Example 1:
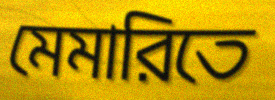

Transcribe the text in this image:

মেমারিতে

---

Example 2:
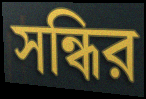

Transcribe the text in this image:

সন্ধির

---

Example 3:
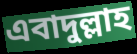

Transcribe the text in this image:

এবাদুল্লাহ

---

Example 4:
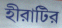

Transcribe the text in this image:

হীরাটির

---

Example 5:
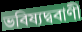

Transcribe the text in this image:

ভবিষ্যদ্ববাণী